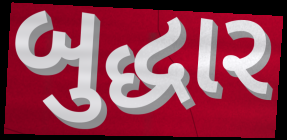
બુદ્ધાર